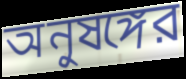
অনুষঙ্গের